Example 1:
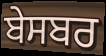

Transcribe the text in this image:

ਬੇਸਬਰ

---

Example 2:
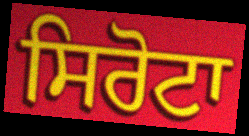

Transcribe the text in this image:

ਸਿਰੋਟਾ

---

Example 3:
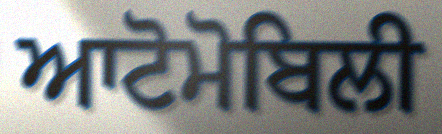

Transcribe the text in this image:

ਆਟੋਮੋਬਿਲੀ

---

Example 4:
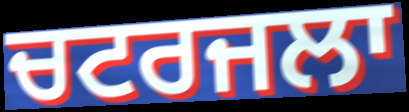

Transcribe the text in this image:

ਚਟਰਜਲਾ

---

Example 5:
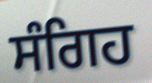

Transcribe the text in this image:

ਸੰਗਿਹ